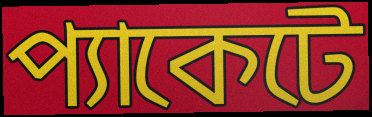
প্যাকেটে